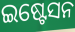
ଇଷ୍ଟେସନ